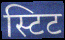
स्टिट